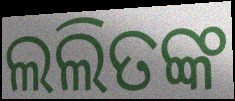
ଲଲିତଙ୍କ